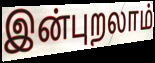
இன்புறலாம்